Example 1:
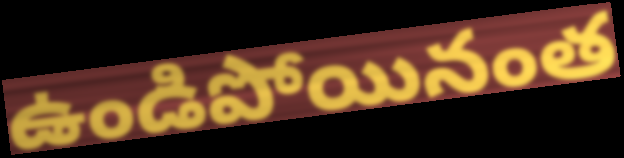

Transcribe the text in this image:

ఉండిపోయినంత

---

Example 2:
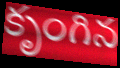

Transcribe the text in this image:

కృంగిన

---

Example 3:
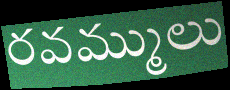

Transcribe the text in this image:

రవమ్ములు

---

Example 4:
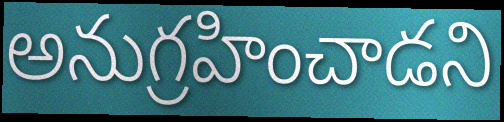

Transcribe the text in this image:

అనుగ్రహించాడని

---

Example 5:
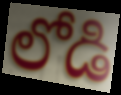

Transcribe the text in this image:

లోడి